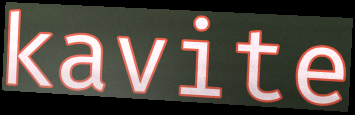
kavite